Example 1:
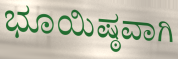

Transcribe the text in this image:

ಭೂಯಿಷ್ಠವಾಗಿ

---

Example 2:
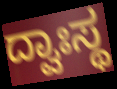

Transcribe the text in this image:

ದ್ವಾಃಸ್ಥ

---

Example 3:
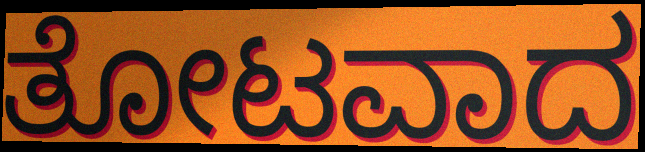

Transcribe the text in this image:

ತೋಟವಾದ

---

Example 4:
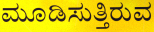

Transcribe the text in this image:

ಮೂಡಿಸುತ್ತಿರುವ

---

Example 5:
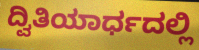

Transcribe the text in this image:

ದ್ವಿತಿಯಾರ್ಧದಲ್ಲಿ